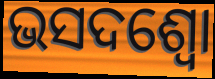
ଭସଦଶ୍ଵୋ